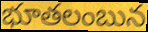
భూతలంబున